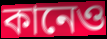
কানেও